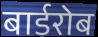
बार्डरोब